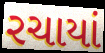
રચાયાં